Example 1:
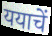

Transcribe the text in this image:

ययाचें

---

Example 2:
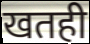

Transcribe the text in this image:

खतही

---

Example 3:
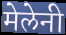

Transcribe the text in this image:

मेलेनी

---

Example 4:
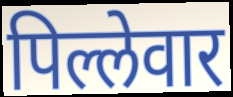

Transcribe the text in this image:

पिल्लेवार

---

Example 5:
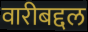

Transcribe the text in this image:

वारीबद्दल